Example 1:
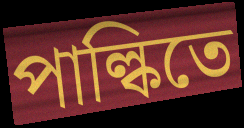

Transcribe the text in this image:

পাল্কিতে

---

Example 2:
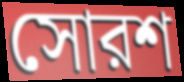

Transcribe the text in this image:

সোরশ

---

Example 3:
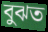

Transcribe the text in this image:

বুঝত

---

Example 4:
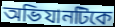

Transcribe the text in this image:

অভিযানটিকে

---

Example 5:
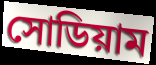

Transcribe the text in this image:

সোডিয়াম